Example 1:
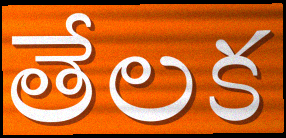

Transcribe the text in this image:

తేలక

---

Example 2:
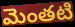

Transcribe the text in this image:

మెంతటి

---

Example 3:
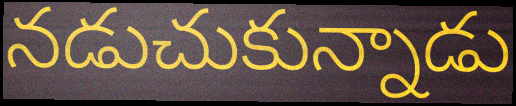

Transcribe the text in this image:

నడుచుకున్నాడు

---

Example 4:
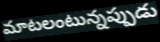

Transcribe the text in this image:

మాటలంటున్నప్పుడు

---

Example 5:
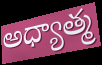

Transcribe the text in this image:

అధ్యాత్మ